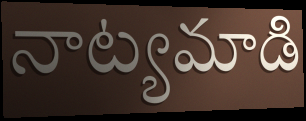
నాట్యమాడి